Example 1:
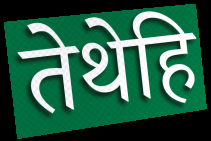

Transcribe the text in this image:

तेथेहि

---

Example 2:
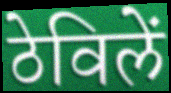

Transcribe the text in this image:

ठेविलें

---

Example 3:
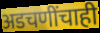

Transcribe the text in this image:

अडचणींचाही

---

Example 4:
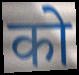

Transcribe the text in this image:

को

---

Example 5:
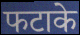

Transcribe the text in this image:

फटाके